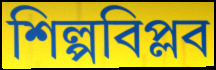
শিল্পবিপ্লব